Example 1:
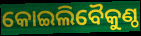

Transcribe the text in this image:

କୋଇଲିବୈକୁଣ୍ଠ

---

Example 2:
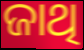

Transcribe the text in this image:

ଜାଥି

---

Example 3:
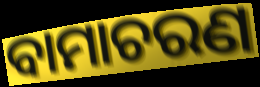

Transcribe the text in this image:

ବାମାଚରଣ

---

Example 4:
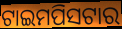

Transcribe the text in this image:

ଟାଇମପିସଟାର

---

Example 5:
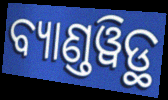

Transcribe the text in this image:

ବ୍ୟାଣ୍ଡୱିଡ୍ଥ